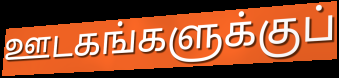
ஊடகங்களுக்குப்